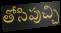
తోసిపుచ్చి